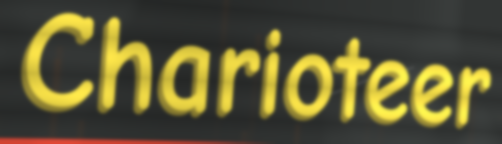
Charioteer